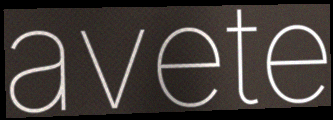
avete